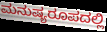
ಮನುಷ್ಯರೂಪದಲ್ಲಿ